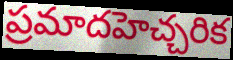
ప్రమాదహెచ్చరిక